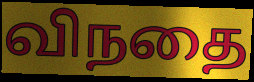
விநதை